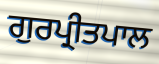
ਗੁਰਪ੍ਰੀਤਪਾਲ